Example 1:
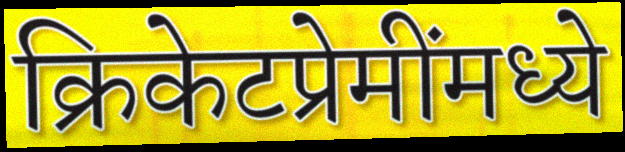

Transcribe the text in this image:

क्रिकेटप्रेमींमध्ये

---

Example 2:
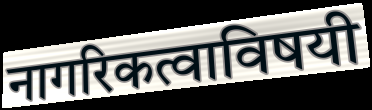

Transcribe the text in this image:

नागरिकत्वाविषयी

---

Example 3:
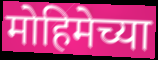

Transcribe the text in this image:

मोहिमेच्या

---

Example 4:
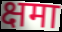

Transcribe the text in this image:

क्षमा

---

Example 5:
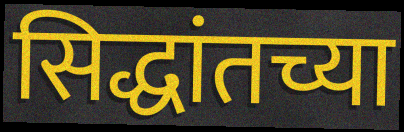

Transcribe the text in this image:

सिद्धांतच्या